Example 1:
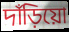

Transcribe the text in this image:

দাঁড়িয়ো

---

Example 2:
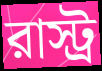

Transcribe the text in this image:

রাস্ট্র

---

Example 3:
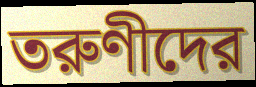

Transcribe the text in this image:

তরুণীদের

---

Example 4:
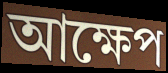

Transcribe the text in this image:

আক্ষেপ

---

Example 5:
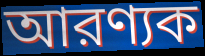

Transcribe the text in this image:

আরণ্যক